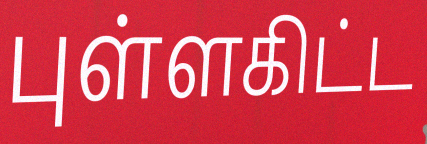
புள்ளகிட்ட